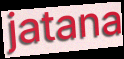
jatana